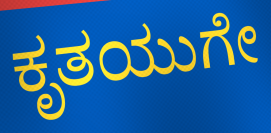
ಕೃತಯುಗೇ